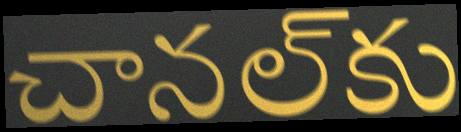
చానల్‌కు